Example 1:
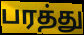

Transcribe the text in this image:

பரத்து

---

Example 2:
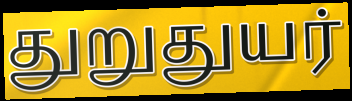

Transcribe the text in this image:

துறுதுயர்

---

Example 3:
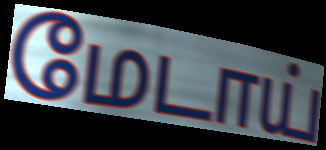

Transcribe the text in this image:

மேடாய்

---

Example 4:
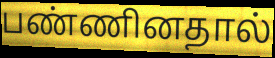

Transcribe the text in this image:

பண்ணினதால்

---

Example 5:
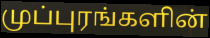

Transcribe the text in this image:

முப்புரங்களின்